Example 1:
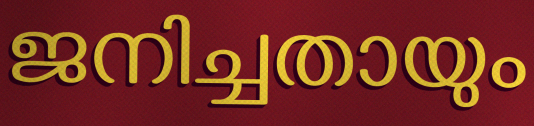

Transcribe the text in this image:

ജനിച്ചതായും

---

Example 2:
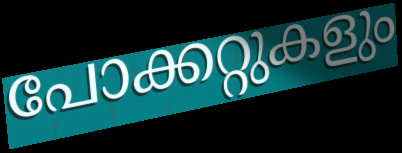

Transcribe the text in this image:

പോക്കറ്റുകളും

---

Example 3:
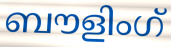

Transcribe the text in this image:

ബൗളിംഗ്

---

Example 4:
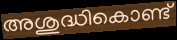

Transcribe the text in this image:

അശുദ്ധികൊണ്ട്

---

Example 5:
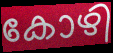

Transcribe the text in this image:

കോഴി